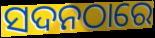
ସଦନଠାରେ